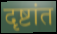
दृष्टांत